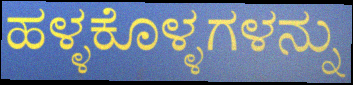
ಹಳ್ಳಕೊಳ್ಳಗಳನ್ನು